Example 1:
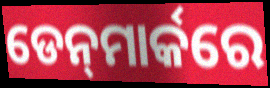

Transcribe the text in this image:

ଡେନ୍‍ମାର୍କରେ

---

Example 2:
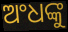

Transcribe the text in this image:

ଅଂଧଙ୍କୁ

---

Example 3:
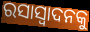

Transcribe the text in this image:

ରସାସ୍ୱାଦନକୁ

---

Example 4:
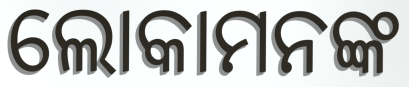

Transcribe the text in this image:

ଲୋକାମନଙ୍କ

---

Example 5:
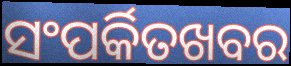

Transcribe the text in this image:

ସଂପର୍କିତଖବର